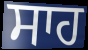
ਸਾਹ